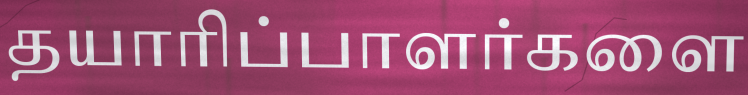
தயாரிப்பாளர்களை